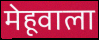
मेहूवाला